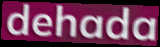
dehada